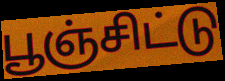
பூஞ்சிட்டு